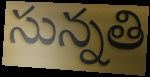
సున్నతి